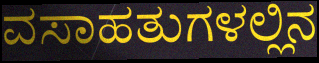
ವಸಾಹತುಗಳಲ್ಲಿನ